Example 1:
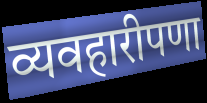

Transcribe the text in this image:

व्यवहारीपणा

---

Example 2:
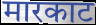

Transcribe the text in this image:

मारकाट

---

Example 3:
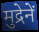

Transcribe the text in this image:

मुद्रेनें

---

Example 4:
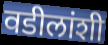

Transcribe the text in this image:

वडीलांशी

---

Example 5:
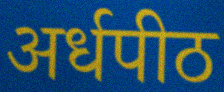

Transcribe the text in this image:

अर्धपीठ